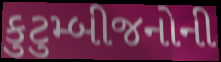
કુટુમ્બીજનોની